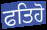
ਫਤਿਹੋ